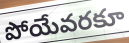
పోయేవరకూ